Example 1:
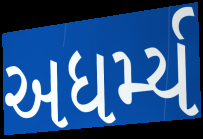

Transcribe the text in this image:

અધર્મ્ય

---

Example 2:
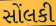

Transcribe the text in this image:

સોંલકી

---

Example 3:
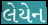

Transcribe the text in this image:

લેયેન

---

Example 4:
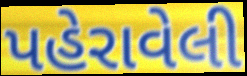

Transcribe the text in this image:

પહેરાવેલી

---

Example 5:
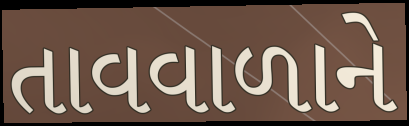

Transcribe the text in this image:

તાવવાળાને